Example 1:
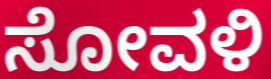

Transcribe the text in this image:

ಸೋವಳಿ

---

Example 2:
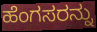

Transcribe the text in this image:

ಹೆಂಗಸರನ್ನು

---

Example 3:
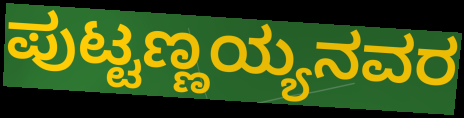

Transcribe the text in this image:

ಪುಟ್ಟಣ್ಣಯ್ಯನವರ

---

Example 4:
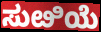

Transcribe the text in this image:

ಸುೞಿಯೆ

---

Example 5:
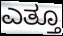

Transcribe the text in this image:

ಎತ್ತೂ